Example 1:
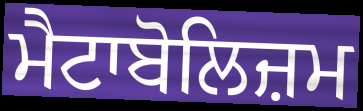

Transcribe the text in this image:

ਮੈਟਾਬੋਲਿਜ਼ਮ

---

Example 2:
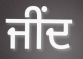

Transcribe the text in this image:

ਜੀਂਦ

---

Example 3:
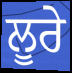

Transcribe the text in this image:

ਲੂਰੇ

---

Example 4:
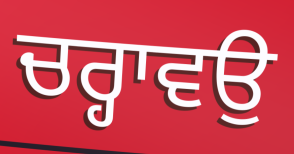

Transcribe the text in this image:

ਚਰ੍ਹਾਵਉ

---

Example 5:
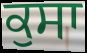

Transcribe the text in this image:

ਕੁਸਾ